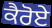
ਕੈਰੋਏ